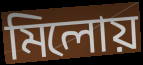
মিলোয়